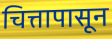
चित्तापासून